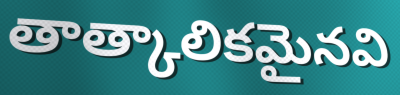
తాత్కాలికమైనవి